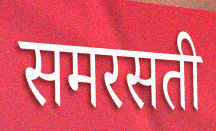
समरसती